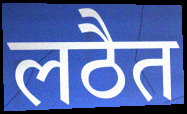
लठैत